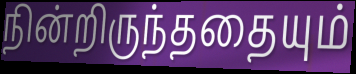
நின்றிருந்ததையும்